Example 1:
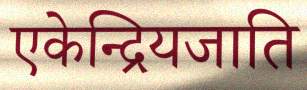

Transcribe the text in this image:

एकेन्द्रियजाति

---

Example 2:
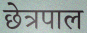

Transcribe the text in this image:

छेत्रपाल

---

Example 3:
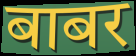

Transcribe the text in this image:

बाबर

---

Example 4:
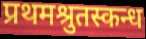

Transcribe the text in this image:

प्रथमश्रुतस्कन्ध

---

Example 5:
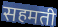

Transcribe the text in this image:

सहमती